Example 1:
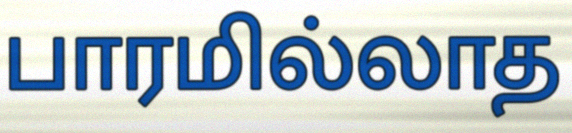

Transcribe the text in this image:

பாரமில்லாத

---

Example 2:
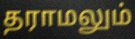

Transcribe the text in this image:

தராமலும்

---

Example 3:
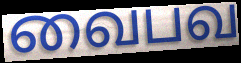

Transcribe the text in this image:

வைபவ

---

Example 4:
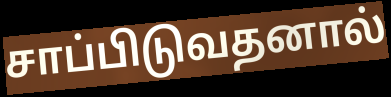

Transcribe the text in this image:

சாப்பிடுவதனால்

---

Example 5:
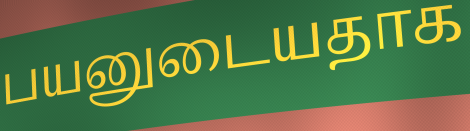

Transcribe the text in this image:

பயனுடையதாக